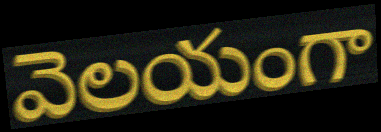
వెలయంగా